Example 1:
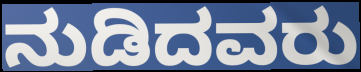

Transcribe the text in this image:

ನುಡಿದವರು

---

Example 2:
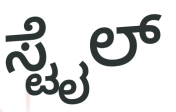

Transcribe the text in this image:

ಸ್ಟೈಲ್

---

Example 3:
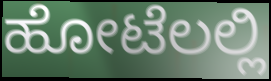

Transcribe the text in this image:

ಹೋಟೆಲಲ್ಲಿ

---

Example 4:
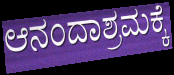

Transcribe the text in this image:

ಆನಂದಾಶ್ರಮಕ್ಕೆ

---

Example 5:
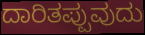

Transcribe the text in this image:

ದಾರಿತಪ್ಪುವುದು